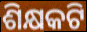
ଶିକ୍ଷକଟି